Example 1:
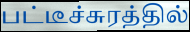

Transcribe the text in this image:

பட்டீச்சுரத்தில்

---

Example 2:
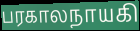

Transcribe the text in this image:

பரகாலநாயகி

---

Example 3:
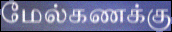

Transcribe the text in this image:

மேல்கணக்கு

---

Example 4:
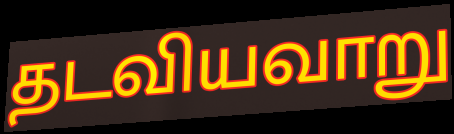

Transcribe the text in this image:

தடவியவாறு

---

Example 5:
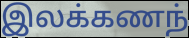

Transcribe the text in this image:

இலக்கணந்